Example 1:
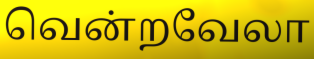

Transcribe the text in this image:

வென்றவேலா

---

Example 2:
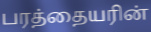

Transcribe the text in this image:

பரத்தையரின்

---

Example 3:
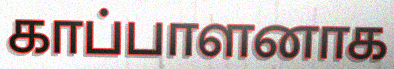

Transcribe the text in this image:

காப்பாளனாக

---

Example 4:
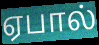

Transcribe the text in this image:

ஏபால்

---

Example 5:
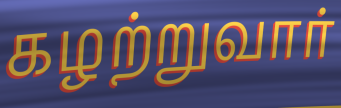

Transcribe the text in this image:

கழற்றுவார்